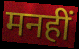
मनहीं